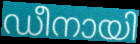
ഡീനായി